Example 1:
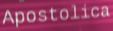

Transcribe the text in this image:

Apostolica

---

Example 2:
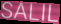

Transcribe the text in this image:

SALIL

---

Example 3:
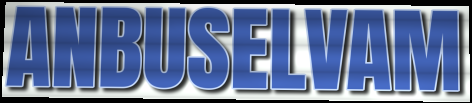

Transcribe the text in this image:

ANBUSELVAM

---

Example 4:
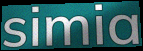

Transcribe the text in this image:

simia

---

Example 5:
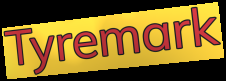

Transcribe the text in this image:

Tyremark